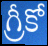
గ్రీకో